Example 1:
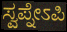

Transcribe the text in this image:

ಸ್ವಪ್ನೇಽಪಿ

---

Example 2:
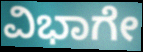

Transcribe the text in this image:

ವಿಭಾಗೇ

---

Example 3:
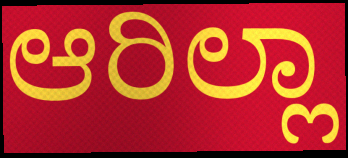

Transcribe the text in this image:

ಆರಿಲ್ಲಾ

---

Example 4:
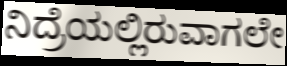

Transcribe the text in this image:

ನಿದ್ರೆಯಲ್ಲಿರುವಾಗಲೇ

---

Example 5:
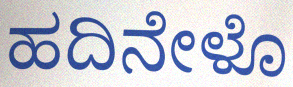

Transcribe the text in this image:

ಹದಿನೇಳೊ